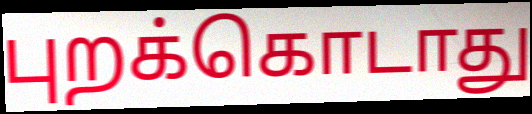
புறக்கொடாது